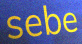
sebe